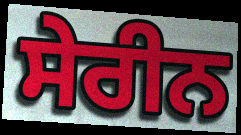
ਸੇਰੀਨ